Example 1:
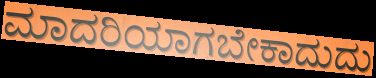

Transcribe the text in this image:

ಮಾದರಿಯಾಗಬೇಕಾದುದು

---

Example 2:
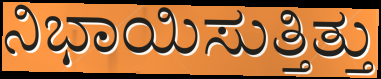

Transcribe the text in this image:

ನಿಭಾಯಿಸುತ್ತಿತ್ತು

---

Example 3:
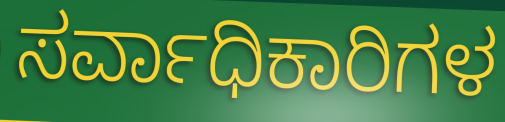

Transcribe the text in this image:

ಸರ್ವಾಧಿಕಾರಿಗಳ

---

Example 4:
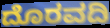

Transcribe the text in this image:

ದೊರವದಿ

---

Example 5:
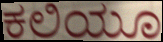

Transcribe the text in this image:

ಕಲಿಯೂ